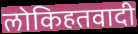
लोकिहतवादी